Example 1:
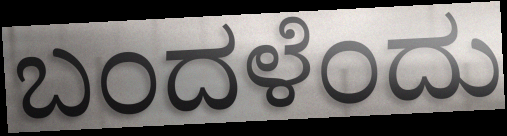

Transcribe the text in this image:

ಬಂದಳೆಂದು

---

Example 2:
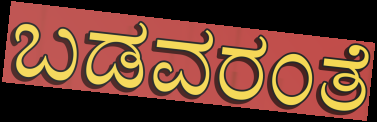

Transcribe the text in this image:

ಬಡವರಂತೆ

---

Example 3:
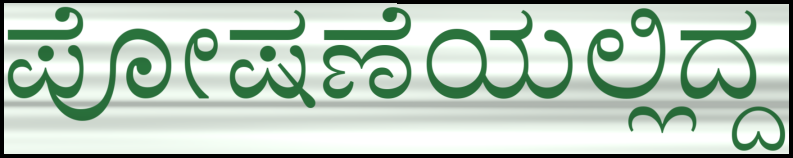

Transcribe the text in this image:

ಪೋಷಣೆಯಲ್ಲಿದ್ದ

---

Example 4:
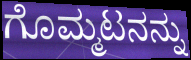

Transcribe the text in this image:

ಗೊಮ್ಮಟನನ್ನು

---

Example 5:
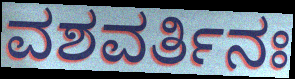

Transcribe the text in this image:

ವಶವರ್ತಿನಃ